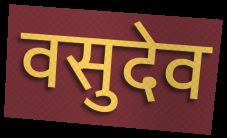
वसुदेव